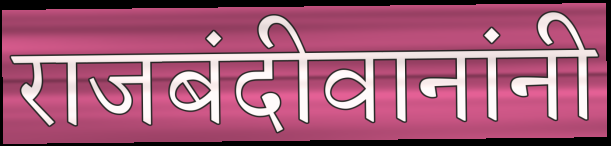
राजबंदीवानांनी